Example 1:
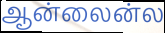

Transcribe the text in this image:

ஆன்லைன்ல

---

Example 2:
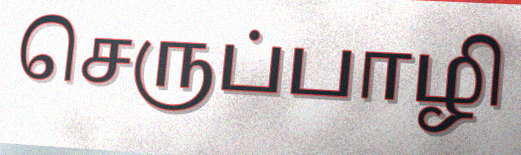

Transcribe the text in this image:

செருப்பாழி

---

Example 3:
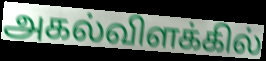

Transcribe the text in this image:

அகல்விளக்கில்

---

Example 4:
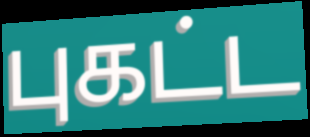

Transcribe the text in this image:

புகட்ட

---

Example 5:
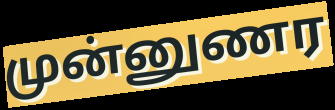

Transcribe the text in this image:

முன்னுணர